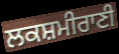
ਲਕਸ਼ਮੀਰਾਣੀ